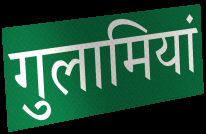
गुलामियां